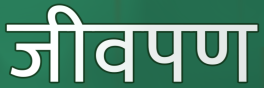
जीवपण